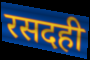
रसदही